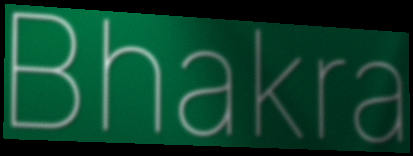
Bhakra